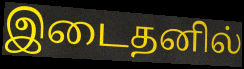
இடைதனில்